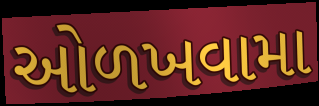
ઓળખવામા